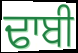
ਢਾਬੀ